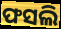
ଫସଲି